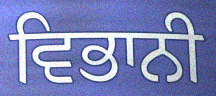
ਵਿਭਾਨੀ